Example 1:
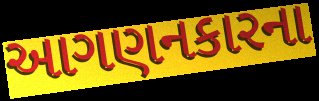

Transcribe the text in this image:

આગણનકારના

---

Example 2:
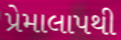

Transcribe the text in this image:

પ્રેમાલાપથી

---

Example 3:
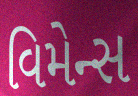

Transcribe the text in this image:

વિમેન્સ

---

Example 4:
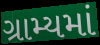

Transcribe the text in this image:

ગ્રામ્યમાં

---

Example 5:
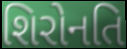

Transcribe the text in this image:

શિરોનતિ